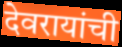
देवरायांची